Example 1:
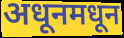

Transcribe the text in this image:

अधूनमधून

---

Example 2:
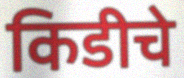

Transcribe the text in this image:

किडीचे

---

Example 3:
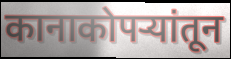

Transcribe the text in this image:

कानाकोपर्‍यांतून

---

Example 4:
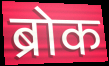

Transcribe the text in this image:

ब्रोक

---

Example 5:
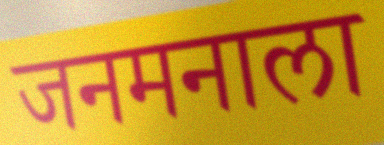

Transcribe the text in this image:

जनमनाला